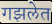
गझलेत